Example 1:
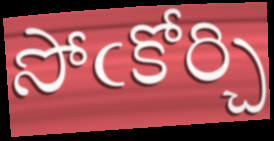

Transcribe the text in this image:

సోఁకోర్చి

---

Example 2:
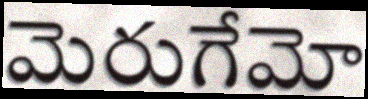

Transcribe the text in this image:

మెరుగేమో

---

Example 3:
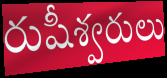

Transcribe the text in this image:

రుషీశ్వరులు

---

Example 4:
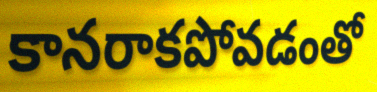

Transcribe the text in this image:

కానరాకపోవడంతో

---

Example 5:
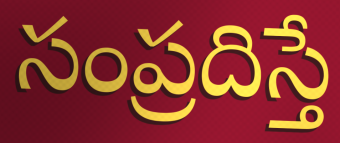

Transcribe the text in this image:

సంప్రదిస్తే